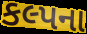
કલ્પના